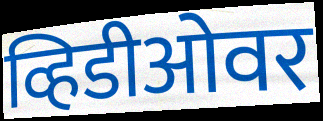
व्हिडीओवर